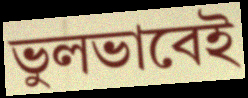
ভুলভাবেই